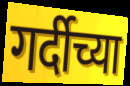
गर्दीच्या